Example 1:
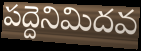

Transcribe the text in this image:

పద్దెనిమిదవ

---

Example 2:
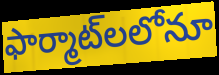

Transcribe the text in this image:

ఫార్మాట్‌లలోనూ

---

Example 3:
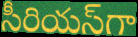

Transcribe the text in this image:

సీరియస్‌గా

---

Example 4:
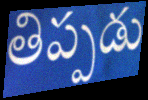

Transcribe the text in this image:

తిప్పడు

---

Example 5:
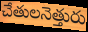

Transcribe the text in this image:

చేతులనెత్తురు